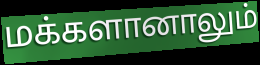
மக்களானாலும்